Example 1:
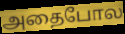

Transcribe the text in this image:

அதைபோல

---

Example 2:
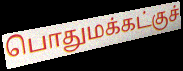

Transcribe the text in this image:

பொதுமக்கட்குச்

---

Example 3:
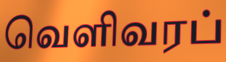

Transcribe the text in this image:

வெளிவரப்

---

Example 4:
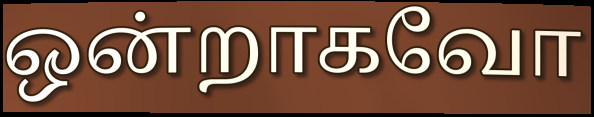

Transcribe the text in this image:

ஒன்றாகவோ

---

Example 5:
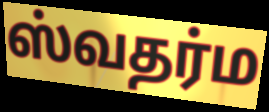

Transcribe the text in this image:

ஸ்வதர்ம